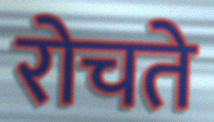
रोचते